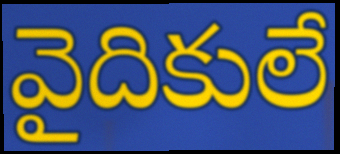
వైదికులే